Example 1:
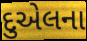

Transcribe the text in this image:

દુએલના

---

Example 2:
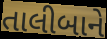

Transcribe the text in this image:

તાલીબાને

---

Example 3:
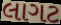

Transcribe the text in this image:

લાગટ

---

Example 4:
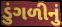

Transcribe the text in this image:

ડુંગળીનું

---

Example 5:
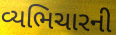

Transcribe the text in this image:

વ્યભિચારની